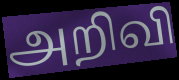
அறிவி